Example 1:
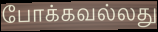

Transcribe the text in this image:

போக்கவல்லது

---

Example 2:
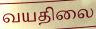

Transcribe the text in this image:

வயதிலை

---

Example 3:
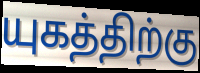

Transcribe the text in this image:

யுகத்திற்கு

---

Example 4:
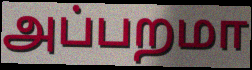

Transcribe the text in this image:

அப்பறமா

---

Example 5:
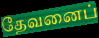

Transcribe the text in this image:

தேவனைப்